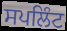
ਸਪਲਿੰਟ